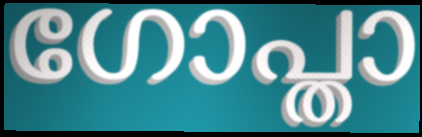
ഗോപ്താ